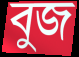
বুজ